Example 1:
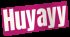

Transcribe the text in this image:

Huyayy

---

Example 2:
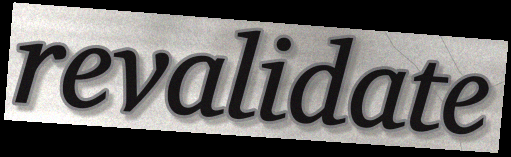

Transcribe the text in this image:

revalidate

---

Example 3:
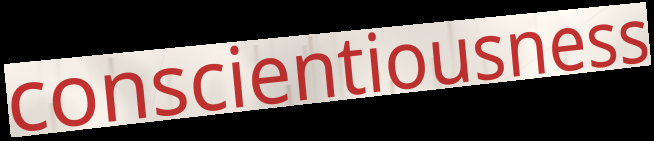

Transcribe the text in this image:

conscientiousness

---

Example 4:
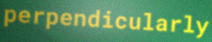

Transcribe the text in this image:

perpendicularly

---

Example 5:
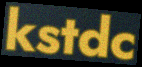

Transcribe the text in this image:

kstdc